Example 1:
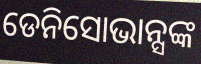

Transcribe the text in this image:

ଡେନିସୋଭାନ୍ସଙ୍କ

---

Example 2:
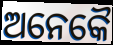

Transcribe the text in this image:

ଅନେକୈ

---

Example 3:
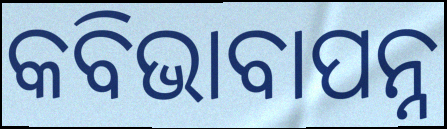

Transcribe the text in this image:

କବିଭାବାପନ୍ନ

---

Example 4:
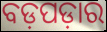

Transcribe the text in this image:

ବଡ଼ପଡ଼ାର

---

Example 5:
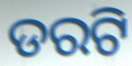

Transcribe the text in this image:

ଡରଟି